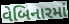
વેબિનારમાં